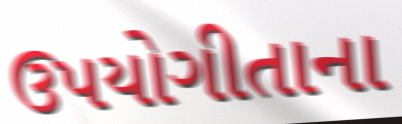
ઉપયોગીતાના